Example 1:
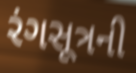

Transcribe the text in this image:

રંગસૂત્રની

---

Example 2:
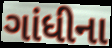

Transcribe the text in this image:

ગાંધીના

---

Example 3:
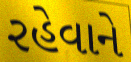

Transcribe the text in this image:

રહેવાને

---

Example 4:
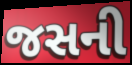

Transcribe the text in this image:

જસની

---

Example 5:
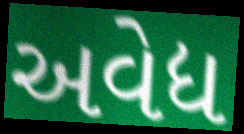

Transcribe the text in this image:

અવેદ્ય